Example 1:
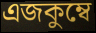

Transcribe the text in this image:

এজকুম্বে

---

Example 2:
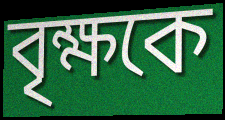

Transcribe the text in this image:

বৃক্ষকে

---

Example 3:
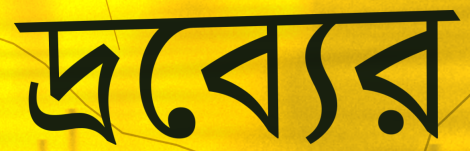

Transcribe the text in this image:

দ্রব্যের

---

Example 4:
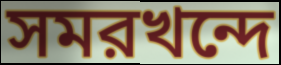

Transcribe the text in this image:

সমরখন্দে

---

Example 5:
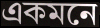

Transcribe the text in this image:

একমনে